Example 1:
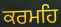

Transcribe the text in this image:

ਕਰਮਹਿ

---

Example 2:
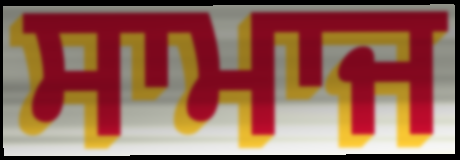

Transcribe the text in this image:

ਸਾਮਾਜ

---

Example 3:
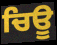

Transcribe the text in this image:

ਚਿਊ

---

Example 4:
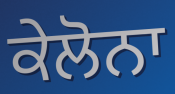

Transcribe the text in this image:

ਕੇਲੋਨਾ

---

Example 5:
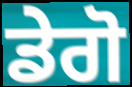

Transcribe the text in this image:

ਡੇਗੋ